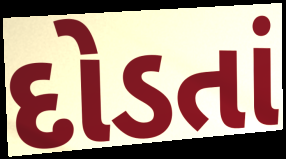
દોડતાં